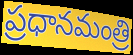
ప్రధానమంత్రి